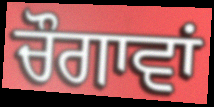
ਚੌਗਾਵਾਂ